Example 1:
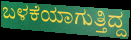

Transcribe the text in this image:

ಬಳಕೆಯಾಗುತ್ತಿದ್ದ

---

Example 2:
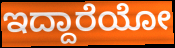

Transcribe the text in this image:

ಇದ್ದಾರೆಯೋ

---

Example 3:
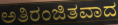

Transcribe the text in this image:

ಅತಿರಂಜಿತವಾದ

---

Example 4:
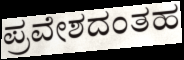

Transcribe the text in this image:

ಪ್ರವೇಶದಂತಹ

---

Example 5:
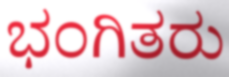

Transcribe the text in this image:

ಭಂಗಿತರು